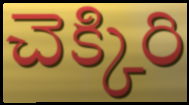
చెక్కిరి